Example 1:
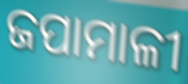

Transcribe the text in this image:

ଜପାମାଳୀ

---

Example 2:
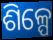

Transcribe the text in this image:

ଶିଳ୍ପେ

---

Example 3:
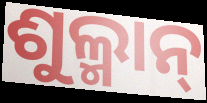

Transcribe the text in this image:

ଶୁଲ୍ମାନ୍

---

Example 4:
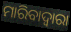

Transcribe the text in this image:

ମାରିବାଦ୍ୱାରା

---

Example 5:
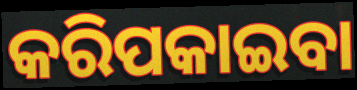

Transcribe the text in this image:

କରିପକାଇବା